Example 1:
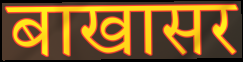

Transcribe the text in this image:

बाखासर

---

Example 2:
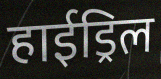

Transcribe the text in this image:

हाईड्रिल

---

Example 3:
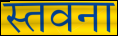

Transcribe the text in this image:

स्तवना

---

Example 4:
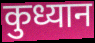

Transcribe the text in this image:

कुध्यान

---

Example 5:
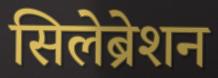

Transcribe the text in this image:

सिलेब्रेशन